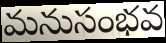
మనుసంభవ